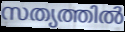
സത്യത്തിൽ